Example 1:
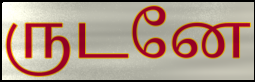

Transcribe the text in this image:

ருடனே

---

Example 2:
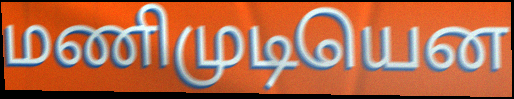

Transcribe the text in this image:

மணிமுடியென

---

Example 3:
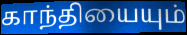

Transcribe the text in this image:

காந்தியையும்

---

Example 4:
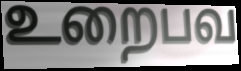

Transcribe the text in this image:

உறைபவ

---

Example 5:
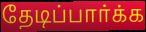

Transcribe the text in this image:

தேடிப்பார்க்க